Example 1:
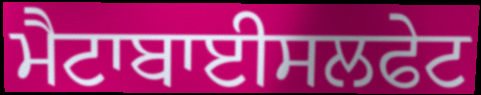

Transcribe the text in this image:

ਮੈਟਾਬਾਈਸਲਫੇਟ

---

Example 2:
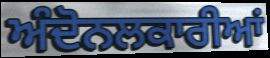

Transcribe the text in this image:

ਅੰਦੋਨਲਕਾਰੀਆਂ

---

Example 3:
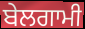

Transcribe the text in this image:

ਬੇਲਗਾਮੀ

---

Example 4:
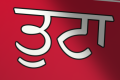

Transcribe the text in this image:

ਤੁਟਾ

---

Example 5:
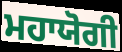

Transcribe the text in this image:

ਮਹਾਯੋਗੀ